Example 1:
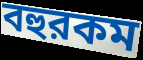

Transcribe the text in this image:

বহুরকম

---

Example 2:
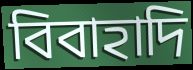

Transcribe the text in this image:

বিবাহাদি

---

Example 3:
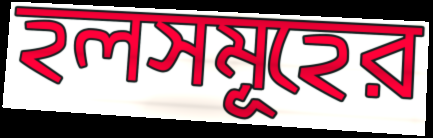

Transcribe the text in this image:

হলসমূহের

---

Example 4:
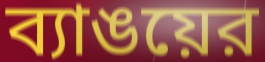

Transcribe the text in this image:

ব্যাঙয়ের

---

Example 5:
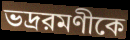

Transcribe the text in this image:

ভদ্ররমণীকে